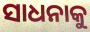
ସାଧନାକୁ